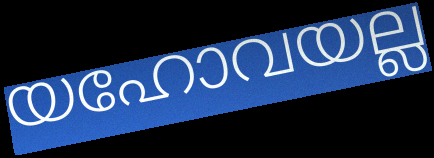
യഹോവയല്ല